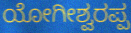
ಯೋಗೀಶ್ವರಪ್ಪ